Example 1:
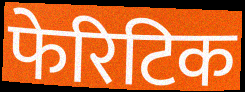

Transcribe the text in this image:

फेरिटिक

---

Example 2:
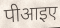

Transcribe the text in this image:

पीआइए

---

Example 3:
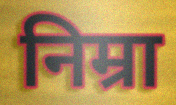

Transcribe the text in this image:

निम्रा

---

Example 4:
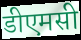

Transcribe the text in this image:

डीएमसी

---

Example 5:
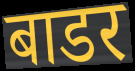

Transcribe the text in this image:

बाडर